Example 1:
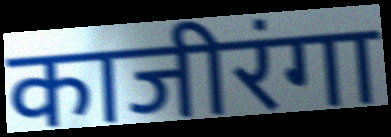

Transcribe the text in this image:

काजीरंगा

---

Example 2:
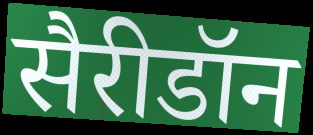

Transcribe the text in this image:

सैरीडॉन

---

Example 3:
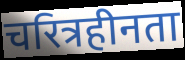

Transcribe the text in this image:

चरित्रहीनता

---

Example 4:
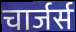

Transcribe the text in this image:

चार्जर्स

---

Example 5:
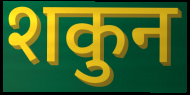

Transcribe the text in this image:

शकुन